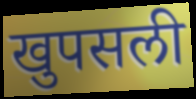
खुपसली